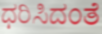
ಧರಿಸಿದಂತೆ